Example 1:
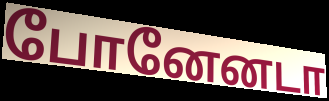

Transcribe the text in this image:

போனேனடா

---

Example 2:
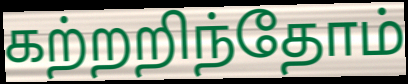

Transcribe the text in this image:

கற்றறிந்தோம்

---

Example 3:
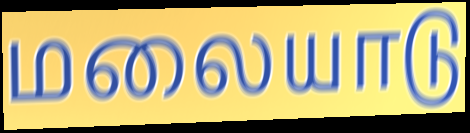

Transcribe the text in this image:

மலையாடு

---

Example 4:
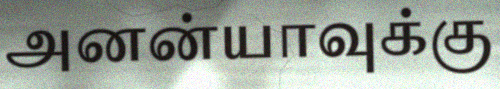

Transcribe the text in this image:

அனன்யாவுக்கு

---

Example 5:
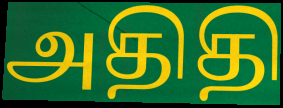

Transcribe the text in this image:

அதிதி